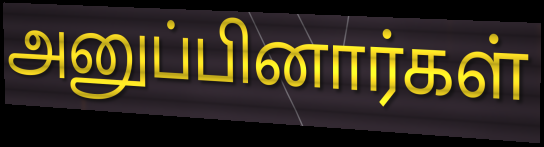
அனுப்பினார்கள்